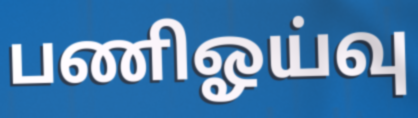
பணிஓய்வு